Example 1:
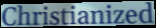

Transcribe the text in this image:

Christianized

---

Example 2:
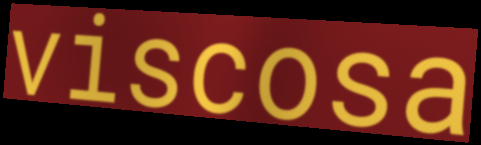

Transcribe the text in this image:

viscosa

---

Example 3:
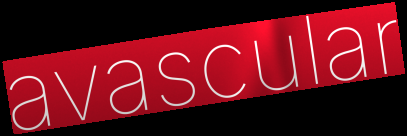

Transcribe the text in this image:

avascular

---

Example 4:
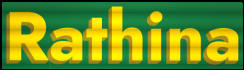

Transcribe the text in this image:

Rathina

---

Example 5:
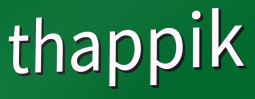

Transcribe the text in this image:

thappik